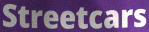
Streetcars